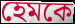
হেমকে